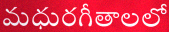
మధురగీతాలలో